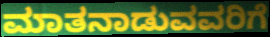
ಮಾತನಾಡುವವರಿಗೆ